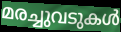
മരച്ചുവടുകൾ